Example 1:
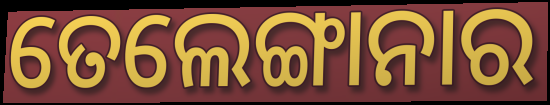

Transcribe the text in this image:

ତେଲେଙ୍ଗାନାର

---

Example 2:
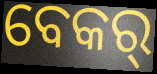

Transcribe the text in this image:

ବେକର୍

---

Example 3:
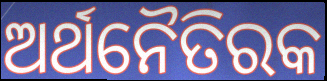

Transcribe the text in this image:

ଅର୍ଥନୈତିରକ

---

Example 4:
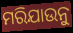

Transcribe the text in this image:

ମରିଯାଉନୁ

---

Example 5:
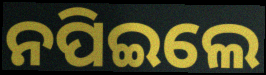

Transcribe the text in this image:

ନପିଇଲେ